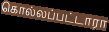
கொல்லப்பட்டாரா